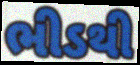
ભીડથી